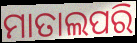
ମାତାଲପରି